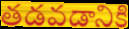
తడవడానికి